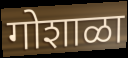
गोशाळा